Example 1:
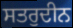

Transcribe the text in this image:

ਸਤਰੁਦੀਨ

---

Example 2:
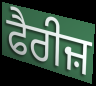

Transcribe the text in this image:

ਫੈਰੀਜ਼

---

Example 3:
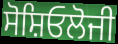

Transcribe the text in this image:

ਸੋਸ਼ਿਓਲੋਜੀ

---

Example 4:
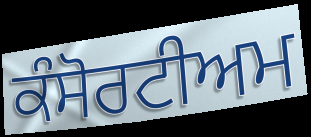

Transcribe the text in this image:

ਕੰਸੋਰਟੀਅਮ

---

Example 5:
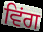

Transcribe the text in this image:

ਵਿਂਗ